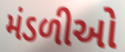
મંડળીઓ